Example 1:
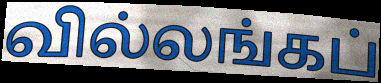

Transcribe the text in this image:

வில்லங்கப்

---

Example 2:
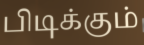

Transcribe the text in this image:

பிடிக்கும்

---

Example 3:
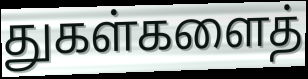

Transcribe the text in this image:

துகள்களைத்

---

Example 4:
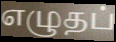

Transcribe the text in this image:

எழுதப்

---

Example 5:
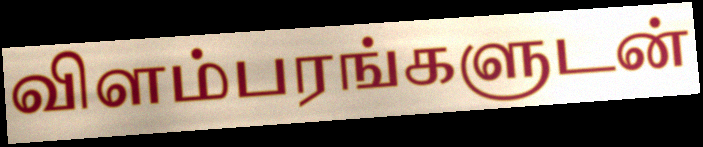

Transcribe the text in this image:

விளம்பரங்களுடன்